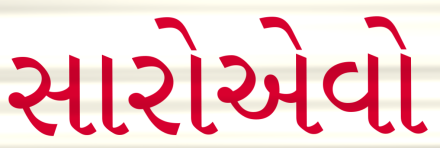
સારોએવો